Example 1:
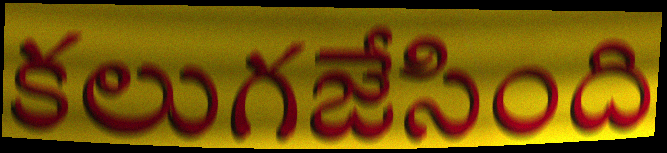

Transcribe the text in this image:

కలుగజేసింది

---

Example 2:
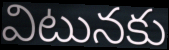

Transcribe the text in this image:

విటునకు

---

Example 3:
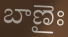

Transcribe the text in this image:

బాణైః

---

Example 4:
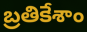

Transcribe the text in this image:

బ్రతికేశాం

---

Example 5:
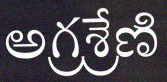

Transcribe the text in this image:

అగ్రశ్రేణి